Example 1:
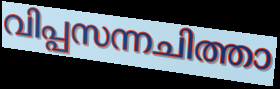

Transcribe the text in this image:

വിപ്പസന്നചിത്താ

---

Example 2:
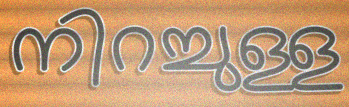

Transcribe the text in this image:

നിറച്ചുള്ള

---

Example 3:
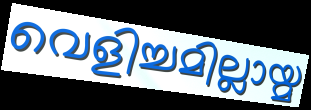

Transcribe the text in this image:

വെളിച്ചമില്ലായ്മ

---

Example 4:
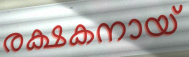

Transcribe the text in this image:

രക്ഷകനായ്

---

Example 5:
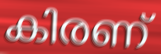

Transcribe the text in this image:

കിരണ്